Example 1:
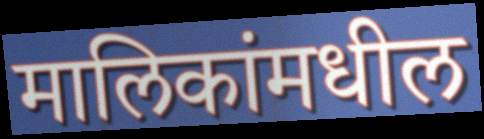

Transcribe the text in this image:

मालिकांमधील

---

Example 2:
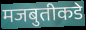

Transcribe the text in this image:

मजबुतीकडे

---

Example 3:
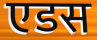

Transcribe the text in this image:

एडस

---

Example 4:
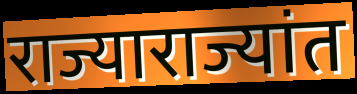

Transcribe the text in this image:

राज्याराज्यांत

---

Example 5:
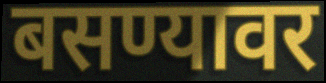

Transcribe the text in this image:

बसण्यावर